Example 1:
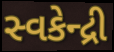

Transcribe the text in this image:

સ્વકેન્દ્રી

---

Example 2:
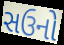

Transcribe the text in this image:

સઉનો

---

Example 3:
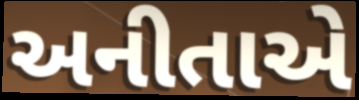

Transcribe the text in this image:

અનીતાએ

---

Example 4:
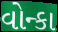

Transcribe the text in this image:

વોન્કા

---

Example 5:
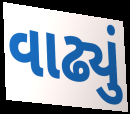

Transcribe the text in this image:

વાઢ્યું